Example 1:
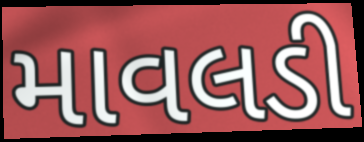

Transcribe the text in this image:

માવલડી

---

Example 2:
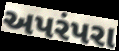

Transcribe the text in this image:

અપરંપરા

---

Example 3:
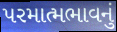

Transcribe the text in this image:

પરમાત્મભાવનું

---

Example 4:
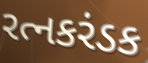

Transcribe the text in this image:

રત્નકરંડક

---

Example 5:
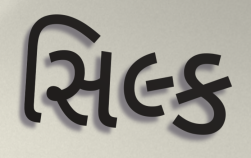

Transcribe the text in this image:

સિલ્ક